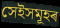
সেইসমূহৰ